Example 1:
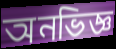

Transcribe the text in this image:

অনভিজ্ঞ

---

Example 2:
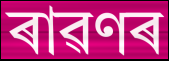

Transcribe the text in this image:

ৰাৱণৰ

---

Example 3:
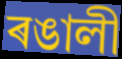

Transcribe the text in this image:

ৰঙালী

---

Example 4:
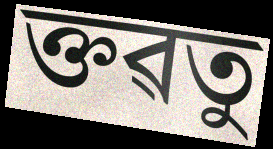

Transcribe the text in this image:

ক্তৱতু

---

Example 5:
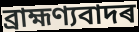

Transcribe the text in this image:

ব্ৰাহ্মণ্যবাদৰ